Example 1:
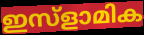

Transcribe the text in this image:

ഇസ്ളാമിക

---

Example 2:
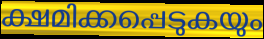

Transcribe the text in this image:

ക്ഷമിക്കപ്പെടുകയും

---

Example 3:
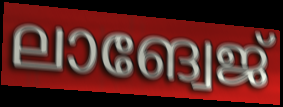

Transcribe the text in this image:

ലാങ്വേജ്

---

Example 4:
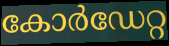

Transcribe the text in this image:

കോർഡേറ്റ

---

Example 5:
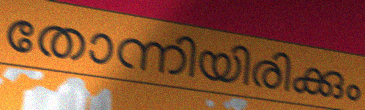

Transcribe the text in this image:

തോന്നിയിരിക്കും